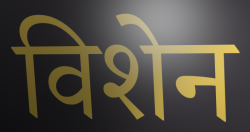
विशेन